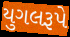
યુગલરૂપે